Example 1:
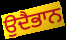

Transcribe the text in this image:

ਉਦੈਭਾਨ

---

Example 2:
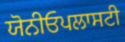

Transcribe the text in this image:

ਯੋਨੀਓਪਲਾਸਟੀ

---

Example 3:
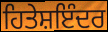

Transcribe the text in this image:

ਹਿਤੇਸ਼ਇੰਦਰ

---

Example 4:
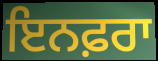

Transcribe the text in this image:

ਇਨਫ਼ਰਾ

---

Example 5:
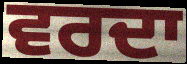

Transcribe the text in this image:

ਵਰਦਾ